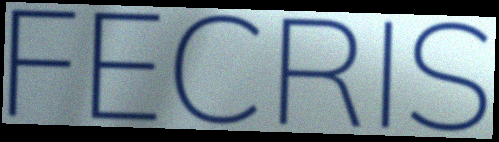
FECRIS